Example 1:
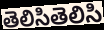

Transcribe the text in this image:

తెలిసితెలిసి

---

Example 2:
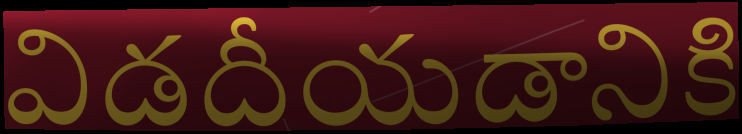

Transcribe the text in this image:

విడదీయడానికి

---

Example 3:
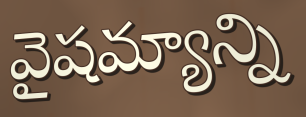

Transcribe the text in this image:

వైషమ్యాన్ని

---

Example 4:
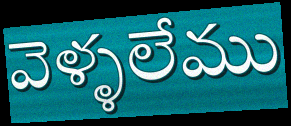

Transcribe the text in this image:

వెళ్ళలేము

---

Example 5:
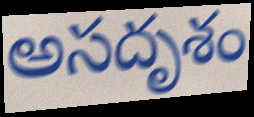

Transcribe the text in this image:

అసదృశం